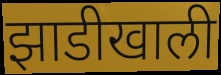
झाडीखाली